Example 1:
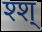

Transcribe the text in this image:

श्श्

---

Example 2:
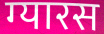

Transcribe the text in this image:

ग्यारस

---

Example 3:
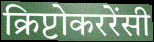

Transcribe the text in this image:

क्रिप्टोकररेंसी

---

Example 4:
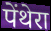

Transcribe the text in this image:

पेंथेरा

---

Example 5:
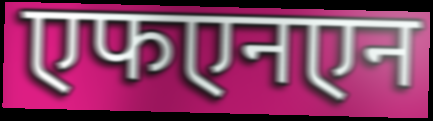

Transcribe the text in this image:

एफएनएन